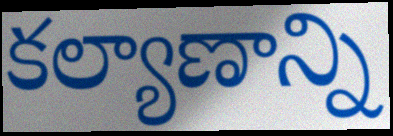
కల్యాణాన్ని